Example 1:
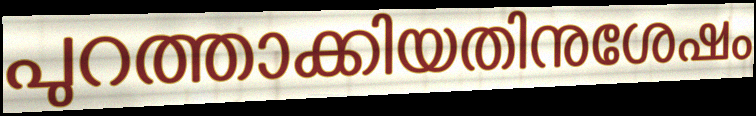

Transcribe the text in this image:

പുറത്താക്കിയതിനുശേഷം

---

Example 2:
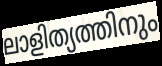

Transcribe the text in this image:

ലാളിത്യത്തിനും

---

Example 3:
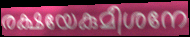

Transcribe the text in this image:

രക്ഷയേകുമീശനേ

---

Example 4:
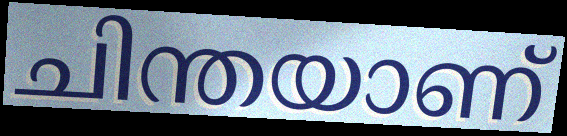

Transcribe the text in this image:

ചിന്തയാണ്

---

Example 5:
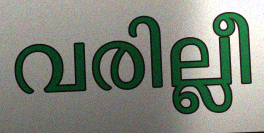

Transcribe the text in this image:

വരില്ലീ